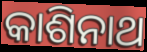
କାଶିନାଥ